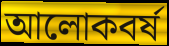
আলোকবৰ্ষ